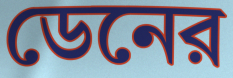
ডেনের